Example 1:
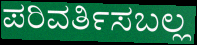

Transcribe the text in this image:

ಪರಿವರ್ತಿಸಬಲ್ಲ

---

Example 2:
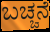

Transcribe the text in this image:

ಬಚ್ಚನೆ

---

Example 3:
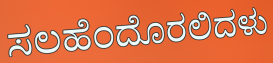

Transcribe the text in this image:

ಸಲಹೆಂದೊರಲಿದಳು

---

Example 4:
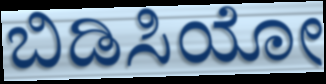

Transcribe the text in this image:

ಬಿಡಿಸಿಯೋ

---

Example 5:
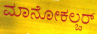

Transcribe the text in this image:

ಮಾನೋಕಲ್ಚರ್